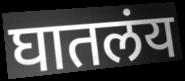
घातलंय